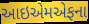
આઇએમએફના